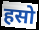
हसो